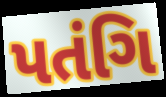
પતંગિ